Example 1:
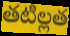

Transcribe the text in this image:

తటిల్లత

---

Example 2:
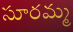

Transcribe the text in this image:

సూరమ్మ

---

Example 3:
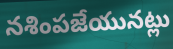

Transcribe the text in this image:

నశింపజేయునట్లు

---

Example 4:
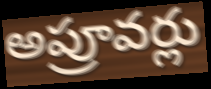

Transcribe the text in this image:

అప్రూవర్లు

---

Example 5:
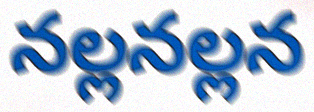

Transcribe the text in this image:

నల్లనల్లన